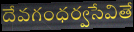
దేవగంధర్వసేవితే